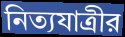
নিত্যযাত্রীর